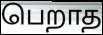
பெறாத